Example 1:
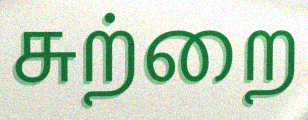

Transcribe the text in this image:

சுற்றை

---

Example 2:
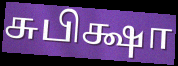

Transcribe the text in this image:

சுபிக்ஷா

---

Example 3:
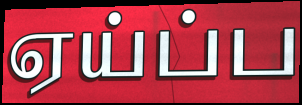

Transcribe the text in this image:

ஏய்ப்ப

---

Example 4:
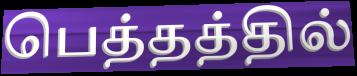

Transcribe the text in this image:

பெத்தத்தில்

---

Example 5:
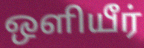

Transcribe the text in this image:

ஒளியீர்